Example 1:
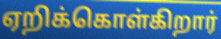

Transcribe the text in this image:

ஏறிக்கொள்கிறார்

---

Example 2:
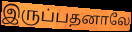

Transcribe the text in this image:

இருப்பதனாலே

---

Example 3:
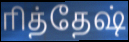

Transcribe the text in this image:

ரித்தேஷ்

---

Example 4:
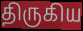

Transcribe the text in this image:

திருகிய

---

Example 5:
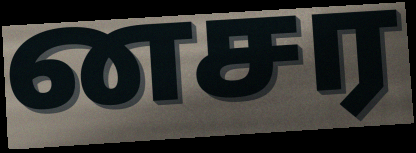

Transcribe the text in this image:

னசர